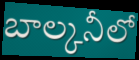
బాల్కనీలో